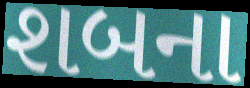
શબના